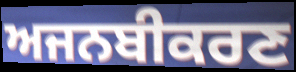
ਅਜਨਬੀਕਰਣ